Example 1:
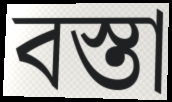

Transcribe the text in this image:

বস্তা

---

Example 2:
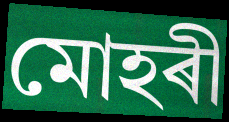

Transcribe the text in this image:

মোহৰী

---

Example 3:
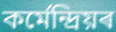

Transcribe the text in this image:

কৰ্মেন্দ্ৰিয়ৰ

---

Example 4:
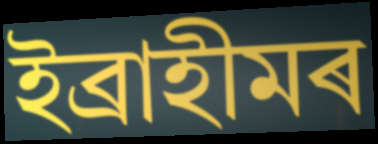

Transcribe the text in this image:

ইব্ৰাহীমৰ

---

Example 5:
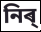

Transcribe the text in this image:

নিৰ্